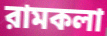
রামকলা